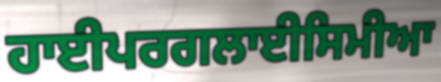
ਹਾਈਪਰਗਲਾਈਸਿਮੀਆ